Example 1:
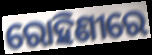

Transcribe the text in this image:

ରୋହିଣୀରେ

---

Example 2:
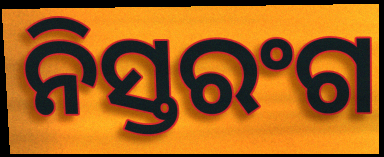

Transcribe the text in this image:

ନିସ୍ତରଂଗ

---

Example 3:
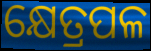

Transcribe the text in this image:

କ୍ଷେତ୍ରପଳ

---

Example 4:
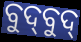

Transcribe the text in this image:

ବୁଦ୍‍ବୁଦ୍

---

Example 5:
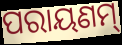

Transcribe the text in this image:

ପରାୟଣମ୍